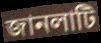
জানলাটি